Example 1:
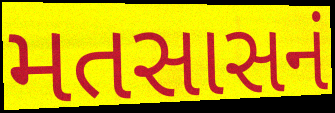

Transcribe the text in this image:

મતસાસનં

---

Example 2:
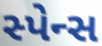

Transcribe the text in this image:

સ્પેન્સ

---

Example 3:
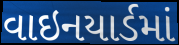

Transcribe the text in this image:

વાઇનયાર્ડમાં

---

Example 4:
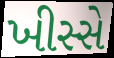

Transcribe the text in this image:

ખીસ્સે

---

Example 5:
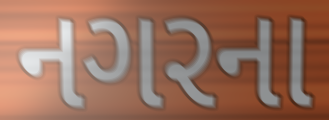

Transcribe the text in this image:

નગરના